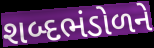
શબ્દભંડોળને